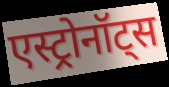
एस्ट्रोनॉट्स